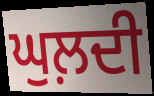
ਘੁਲ਼ਦੀ